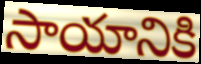
సాయానికి